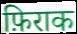
फ़िराक